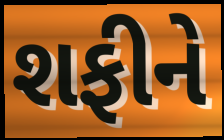
શફીને